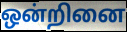
ஒன்றினை